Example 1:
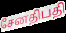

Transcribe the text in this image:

சேனதிபதி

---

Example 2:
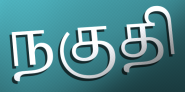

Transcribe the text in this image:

நகுதி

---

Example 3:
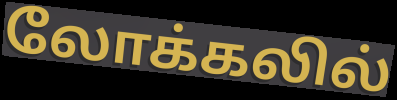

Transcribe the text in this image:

லோக்கலில்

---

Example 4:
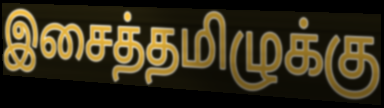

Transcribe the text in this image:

இசைத்தமிழுக்கு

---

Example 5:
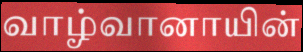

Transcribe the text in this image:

வாழ்வானாயின்